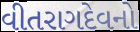
વીતરાગદેવનો